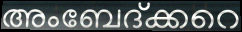
അംബേദ്ക്കറെ